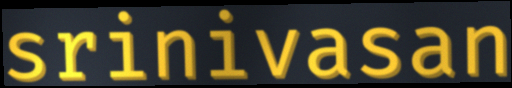
srinivasan